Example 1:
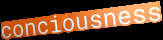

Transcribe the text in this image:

conciousness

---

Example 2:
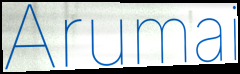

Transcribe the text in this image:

Arumai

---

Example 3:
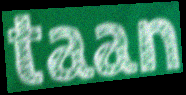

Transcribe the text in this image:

taan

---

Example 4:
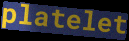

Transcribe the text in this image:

platelet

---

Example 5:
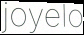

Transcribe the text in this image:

joyelo